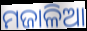
ମଜାଳିଆ